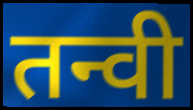
तन्वी